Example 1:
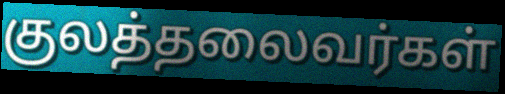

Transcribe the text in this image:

குலத்தலைவர்கள்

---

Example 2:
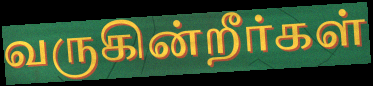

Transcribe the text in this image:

வருகின்றீர்கள்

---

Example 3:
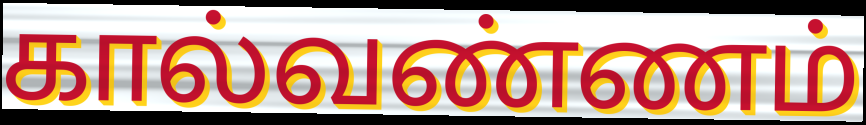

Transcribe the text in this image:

கால்வண்ணம்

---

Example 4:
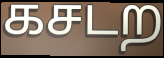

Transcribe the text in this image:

கசடற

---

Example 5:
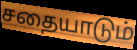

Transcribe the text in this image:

சதையாடும்